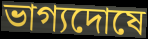
ভাগ্যদোষে